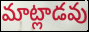
మాట్లాడవు